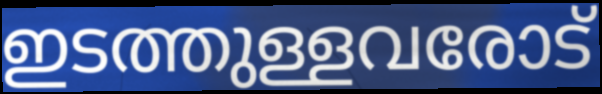
ഇടത്തുള്ളവരോട്